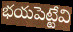
భయపెట్టేవి